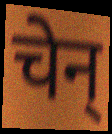
चेन्